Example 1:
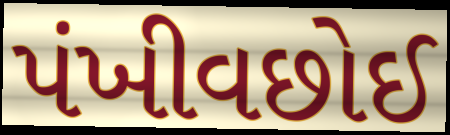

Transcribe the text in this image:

પંખીવછોઈ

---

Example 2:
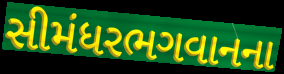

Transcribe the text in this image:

સીમંધરભગવાનના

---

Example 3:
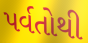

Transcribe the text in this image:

પર્વતોથી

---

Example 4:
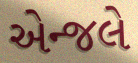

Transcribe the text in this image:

એન્જલે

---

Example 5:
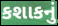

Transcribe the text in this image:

કશાકનું